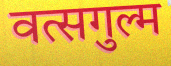
वत्सगुल्म